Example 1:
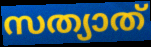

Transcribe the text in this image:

സത്യാത്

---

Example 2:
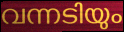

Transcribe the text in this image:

വന്നടിയും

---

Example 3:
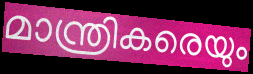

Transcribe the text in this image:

മാന്ത്രികരെയും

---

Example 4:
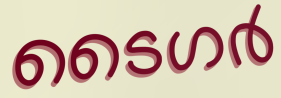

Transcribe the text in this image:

ടൈഗർ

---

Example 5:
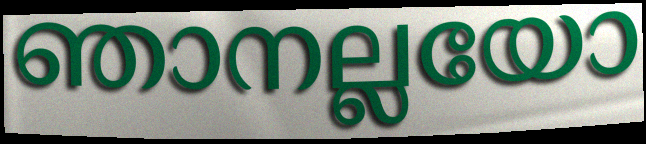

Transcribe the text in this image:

ഞാനല്ലയോ